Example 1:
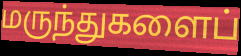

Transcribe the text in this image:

மருந்துகளைப்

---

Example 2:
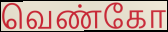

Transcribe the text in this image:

வெண்கோ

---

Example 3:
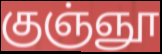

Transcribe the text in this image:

குஞ்ஞூ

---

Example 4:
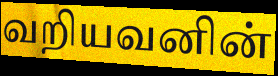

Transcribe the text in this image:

வறியவனின்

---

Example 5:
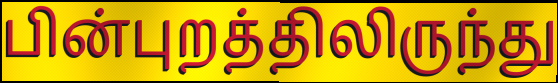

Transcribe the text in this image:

பின்புறத்திலிருந்து